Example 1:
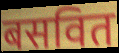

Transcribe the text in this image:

बसवित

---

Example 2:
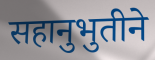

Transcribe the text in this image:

सहानुभुतीने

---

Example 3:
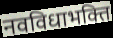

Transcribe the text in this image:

नवविधाभक्ति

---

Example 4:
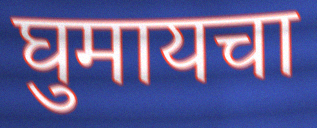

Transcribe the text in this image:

घुमायचा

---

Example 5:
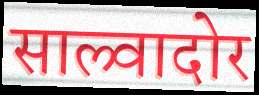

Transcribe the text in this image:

साल्वादोर